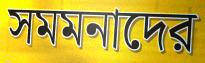
সমমনাদের